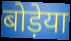
बोड़ेया